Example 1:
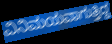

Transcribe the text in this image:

ವಿನಿಮಯವಾಗುತ್ತಿದ್ದ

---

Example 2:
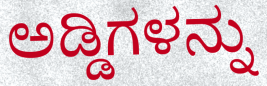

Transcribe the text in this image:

ಅಡ್ಡಿಗಳನ್ನು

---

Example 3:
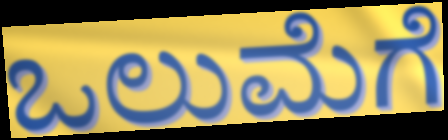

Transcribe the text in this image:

ಒಲುಮೆಗೆ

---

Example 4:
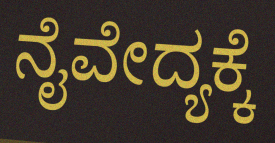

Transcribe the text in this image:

ನೈವೇದ್ಯಕ್ಕೆ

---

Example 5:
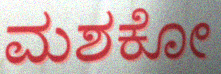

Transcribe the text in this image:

ಮಶಕೋ